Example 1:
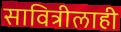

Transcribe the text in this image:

सावित्रीलाही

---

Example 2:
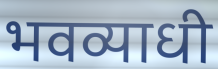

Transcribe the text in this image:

भवव्याधी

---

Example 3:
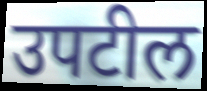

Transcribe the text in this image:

उपटील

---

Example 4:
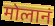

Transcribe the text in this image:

मोलानं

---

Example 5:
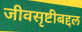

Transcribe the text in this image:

जीवसृष्टीबद्दल